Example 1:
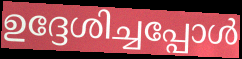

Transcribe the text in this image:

ഉദ്ദേശിച്ചപ്പോൾ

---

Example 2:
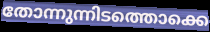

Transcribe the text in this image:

തോന്നുന്നിടത്തൊക്കെ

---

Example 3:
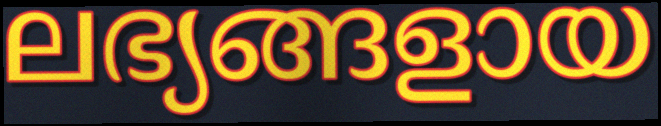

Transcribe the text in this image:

ലഭ്യങ്ങളായ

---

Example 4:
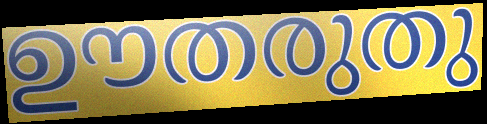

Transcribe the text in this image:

ഊതരുതു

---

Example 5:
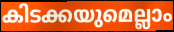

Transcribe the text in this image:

കിടക്കയുമെല്ലാം